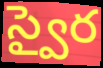
స్వైర